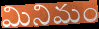
మినిమం